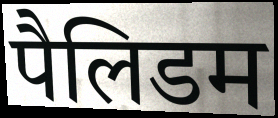
पैलिडम